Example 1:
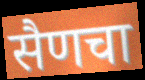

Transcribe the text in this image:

सैणचा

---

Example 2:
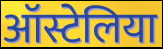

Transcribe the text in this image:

ऑस्टेलिया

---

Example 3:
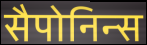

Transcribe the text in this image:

सैपोनिन्स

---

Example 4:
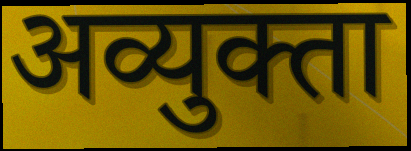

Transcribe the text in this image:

अव्युक्ता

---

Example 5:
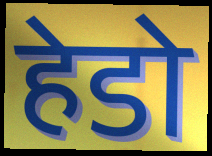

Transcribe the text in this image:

हेडो